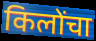
किलोंचा